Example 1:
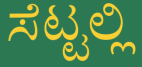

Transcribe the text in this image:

ಸೆಟ್ಟಲ್ಲಿ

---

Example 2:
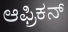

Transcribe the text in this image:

ಆಫ್ರಿಕನ್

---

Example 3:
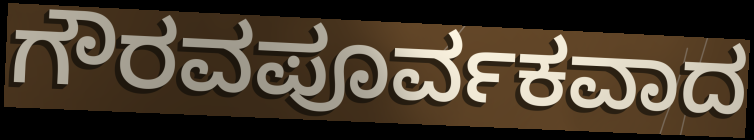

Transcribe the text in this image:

ಗೌರವಪೂರ್ವಕವಾದ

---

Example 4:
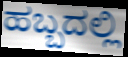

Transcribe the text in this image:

ಹಬ್ಬದಲ್ಲಿ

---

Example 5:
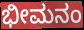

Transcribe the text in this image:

ಭೀಮನಂ